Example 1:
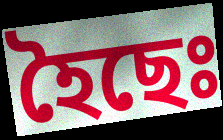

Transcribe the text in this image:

হৈছেঃ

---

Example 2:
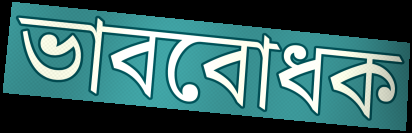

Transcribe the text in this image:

ভাববোধক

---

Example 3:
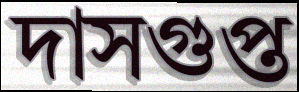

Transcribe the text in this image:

দাসগুপ্ত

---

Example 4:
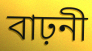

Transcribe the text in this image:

বাঢ়নী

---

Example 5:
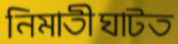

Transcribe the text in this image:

নিমাতীঘাটত